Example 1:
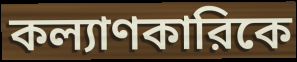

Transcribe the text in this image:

কল্যাণকারিকে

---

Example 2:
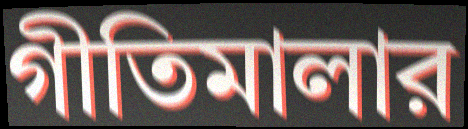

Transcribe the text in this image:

গীতিমালার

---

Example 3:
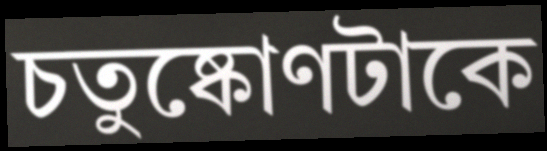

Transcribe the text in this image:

চতুষ্কোণটাকে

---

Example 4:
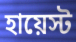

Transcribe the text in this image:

হায়েস্ট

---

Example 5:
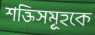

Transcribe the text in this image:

শক্তিসমূহকে